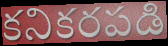
కనికరపడి